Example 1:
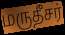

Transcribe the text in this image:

மருதீசர்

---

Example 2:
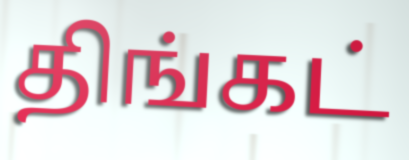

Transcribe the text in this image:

திங்கட்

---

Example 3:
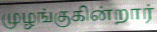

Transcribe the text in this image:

முழங்குகின்றார்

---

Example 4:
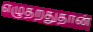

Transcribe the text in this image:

எழுதறதுதான்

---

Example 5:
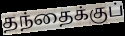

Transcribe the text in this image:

தந்தைக்குப்